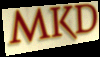
MKD